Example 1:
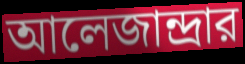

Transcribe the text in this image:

আলেজান্দ্রার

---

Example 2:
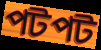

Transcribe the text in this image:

পটপট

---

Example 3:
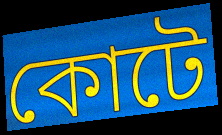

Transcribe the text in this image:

কোটে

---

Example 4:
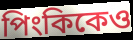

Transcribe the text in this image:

পিংকিকেও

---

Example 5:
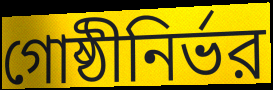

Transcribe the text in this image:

গোষ্ঠীনির্ভর